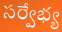
సర్వేభ్య